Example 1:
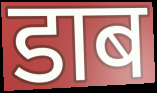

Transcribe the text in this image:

डाब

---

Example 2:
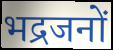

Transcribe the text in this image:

भद्रजनों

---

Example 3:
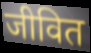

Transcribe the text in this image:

जीवित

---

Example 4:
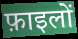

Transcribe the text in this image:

फ़ाइलों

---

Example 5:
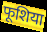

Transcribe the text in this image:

फूशिया